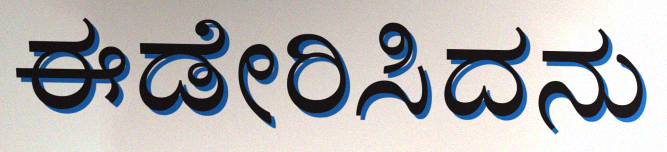
ಈಡೇರಿಸಿದನು